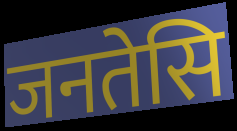
जनतेसि